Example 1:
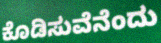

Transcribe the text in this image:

ಕೊಡಿಸುವೆನೆಂದು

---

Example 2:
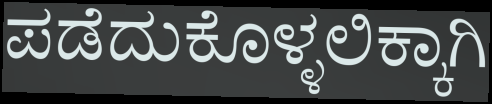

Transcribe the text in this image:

ಪಡೆದುಕೊಳ್ಳಲಿಕ್ಕಾಗಿ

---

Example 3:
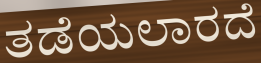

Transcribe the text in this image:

ತಡೆಯಲಾರದೆ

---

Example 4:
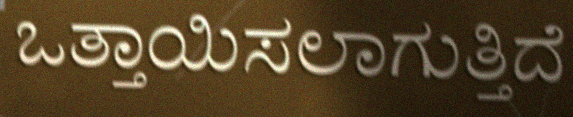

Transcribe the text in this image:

ಒತ್ತಾಯಿಸಲಾಗುತ್ತಿದೆ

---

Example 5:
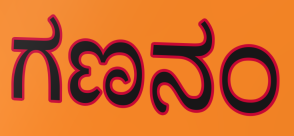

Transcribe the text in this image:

ಗಣನಂ